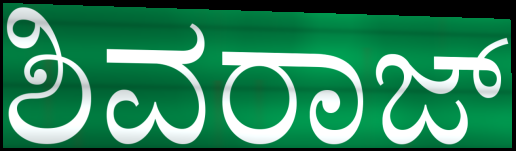
ಶಿವರಾಜ್